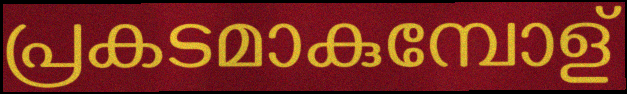
പ്രകടമാകുമ്പോള്